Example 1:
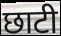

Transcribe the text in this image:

छाटी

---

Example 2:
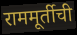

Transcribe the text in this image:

राममूर्तीची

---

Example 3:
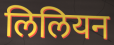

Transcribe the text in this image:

लिलियन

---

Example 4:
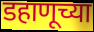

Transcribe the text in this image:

डहाणूच्या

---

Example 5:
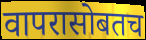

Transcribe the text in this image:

वापरासोबतच